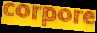
corpore